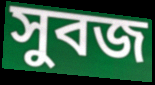
সুবজ